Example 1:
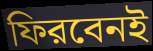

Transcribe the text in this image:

ফিরবেনই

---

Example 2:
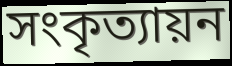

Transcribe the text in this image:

সংকৃত্যায়ন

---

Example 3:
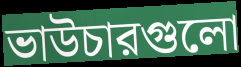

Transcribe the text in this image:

ভাউচারগুলো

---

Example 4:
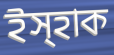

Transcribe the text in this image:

ইস্‌হাক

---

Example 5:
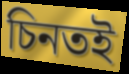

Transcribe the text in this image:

চিনতই